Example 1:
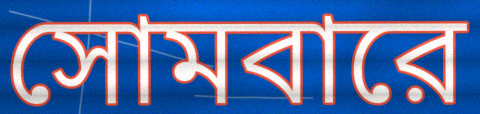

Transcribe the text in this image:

সোমবারে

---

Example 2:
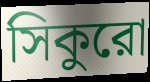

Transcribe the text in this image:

সিকুরো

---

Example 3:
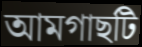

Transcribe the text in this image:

আমগাছটি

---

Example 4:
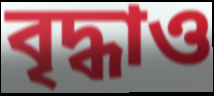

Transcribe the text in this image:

বৃদ্ধাও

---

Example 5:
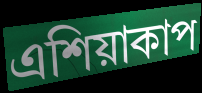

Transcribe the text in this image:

এশিয়াকাপ